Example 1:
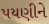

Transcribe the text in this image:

પયણીને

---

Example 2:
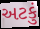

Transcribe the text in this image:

અટકું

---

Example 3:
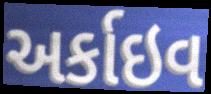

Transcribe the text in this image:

અર્કાઇવ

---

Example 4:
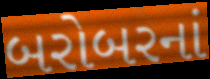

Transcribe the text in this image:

બરોબરનાં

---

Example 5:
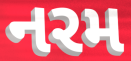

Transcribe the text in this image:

નરમ